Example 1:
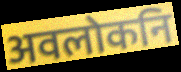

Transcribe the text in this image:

अवलोकनि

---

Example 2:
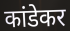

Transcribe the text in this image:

कांडेकर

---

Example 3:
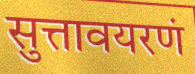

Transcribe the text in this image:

सुत्तावयरणं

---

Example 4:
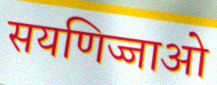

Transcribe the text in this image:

सयणिज्जाओ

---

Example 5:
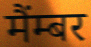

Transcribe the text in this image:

मैंम्बर